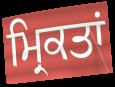
ਮ੍ਰਿਕਤਾਂ